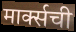
मार्क्सची